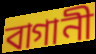
বাগানী